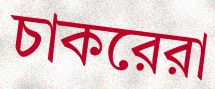
চাকরেরা